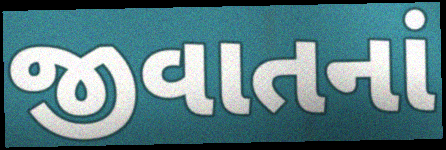
જીવાતનાં